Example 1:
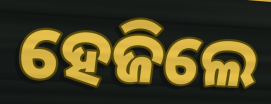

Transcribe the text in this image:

ହେଜିଲେ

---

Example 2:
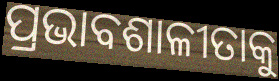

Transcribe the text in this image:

ପ୍ରଭାବଶାଳୀତାକୁ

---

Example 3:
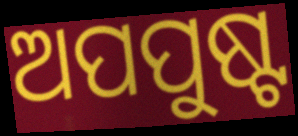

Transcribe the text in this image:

ଅପପୁଷ୍ଟ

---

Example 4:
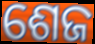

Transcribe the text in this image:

ଶେଜ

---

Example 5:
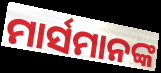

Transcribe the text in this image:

ମାର୍ସମାନଙ୍କ